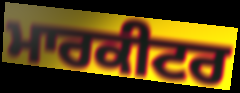
ਮਾਰਕੀਟਰ